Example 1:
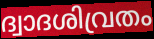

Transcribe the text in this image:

ദ്വാദശിവ്രതം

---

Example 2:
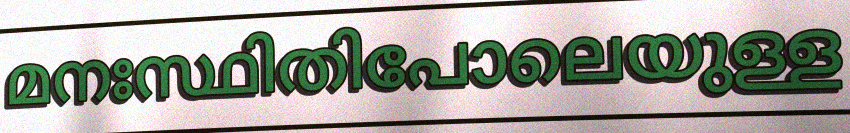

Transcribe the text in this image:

മനഃസ്ഥിതിപോലെയുള്ള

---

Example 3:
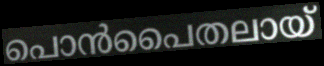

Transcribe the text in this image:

പൊൻപൈതലായ്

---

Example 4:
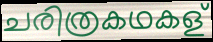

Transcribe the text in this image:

ചരിത്രകഥകള്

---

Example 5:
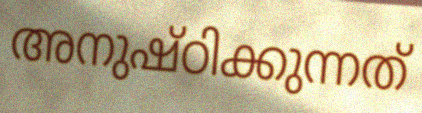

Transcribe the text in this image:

അനുഷ്ഠിക്കുന്നത്